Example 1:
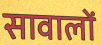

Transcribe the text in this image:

सावालों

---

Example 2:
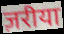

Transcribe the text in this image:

ज़रीया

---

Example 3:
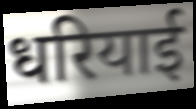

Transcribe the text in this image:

धरियाई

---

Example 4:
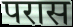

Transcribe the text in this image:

परास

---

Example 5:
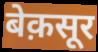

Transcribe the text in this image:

बेक़सूर